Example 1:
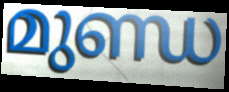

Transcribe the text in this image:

മുണ്ഡ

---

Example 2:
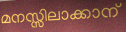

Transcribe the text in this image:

മനസ്സിലാക്കാന്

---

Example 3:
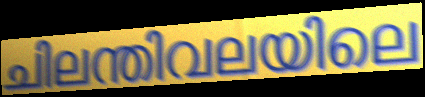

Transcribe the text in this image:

ചിലന്തിവലയിലെ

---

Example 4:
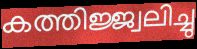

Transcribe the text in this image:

കത്തിജ്ജ്വലിച്ചു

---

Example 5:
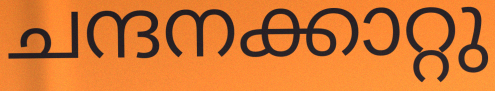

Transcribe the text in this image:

ചന്ദനക്കാറ്റു